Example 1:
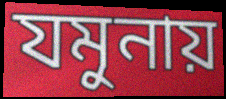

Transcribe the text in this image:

যমুনায়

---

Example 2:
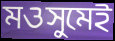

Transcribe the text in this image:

মওসুমেই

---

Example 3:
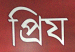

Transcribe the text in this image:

প্রিয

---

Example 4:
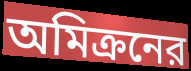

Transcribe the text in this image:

অমিক্রনের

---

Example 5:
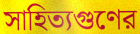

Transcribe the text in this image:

সাহিত্যগুণের